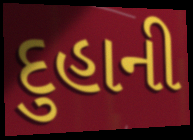
દુહાની